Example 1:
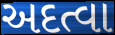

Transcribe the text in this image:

અદત્વા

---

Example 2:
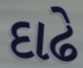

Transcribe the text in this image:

દાઢે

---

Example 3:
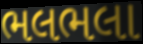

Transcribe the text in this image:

ભલભલા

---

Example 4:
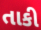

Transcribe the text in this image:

તાકી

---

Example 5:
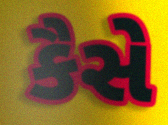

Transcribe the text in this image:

કૈસે